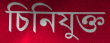
চিনিযুক্ত